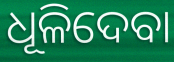
ଧୂଳିଦେବା